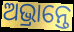
ଅଭ୍ରାନ୍ତେ